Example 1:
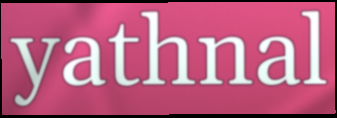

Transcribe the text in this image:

yathnal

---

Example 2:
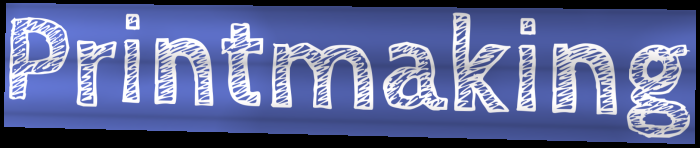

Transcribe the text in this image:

Printmaking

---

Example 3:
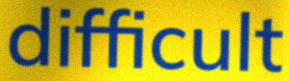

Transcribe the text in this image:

difficult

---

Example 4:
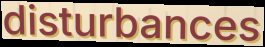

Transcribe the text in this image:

disturbances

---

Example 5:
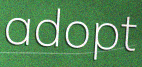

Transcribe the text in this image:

adopt